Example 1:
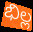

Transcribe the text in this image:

భిల్ల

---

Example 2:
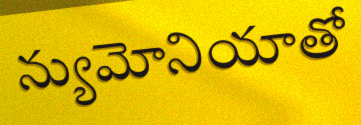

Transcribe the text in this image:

న్యుమోనియాతో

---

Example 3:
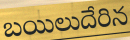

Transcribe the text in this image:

బయిలుదేరిన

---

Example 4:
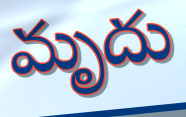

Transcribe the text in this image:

మృదు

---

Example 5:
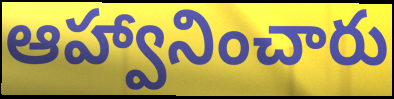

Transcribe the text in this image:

ఆహ్వానించారు